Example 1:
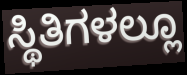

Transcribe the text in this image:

ಸ್ಥಿತಿಗಳಲ್ಲೂ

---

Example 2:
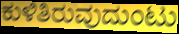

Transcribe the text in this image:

ಕುಳಿತಿರುವುದುಂಟು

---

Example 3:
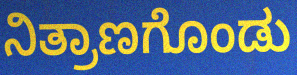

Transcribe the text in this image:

ನಿತ್ರಾಣಗೊಂಡು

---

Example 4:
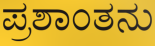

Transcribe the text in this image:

ಪ್ರಶಾಂತನು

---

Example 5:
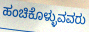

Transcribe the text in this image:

ಹಂಚಿಕೊಳ್ಳುವವರು